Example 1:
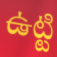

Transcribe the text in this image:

ఉట్టి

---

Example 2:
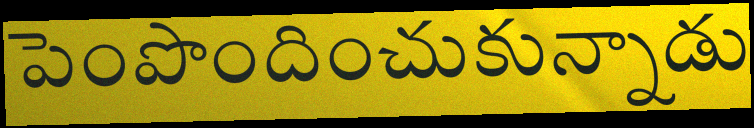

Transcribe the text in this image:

పెంపొందించుకున్నాడు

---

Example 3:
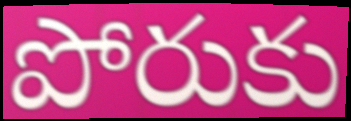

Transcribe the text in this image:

పోరుకు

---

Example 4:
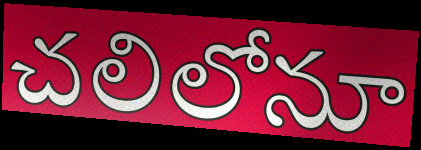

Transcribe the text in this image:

చలిలోనూ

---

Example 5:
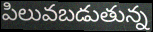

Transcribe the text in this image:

పిలువబడుతున్న